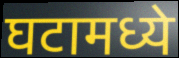
घटामध्ये